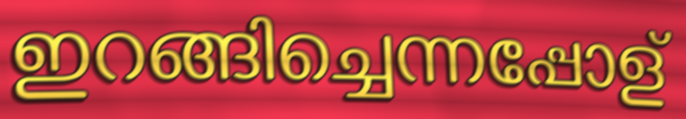
ഇറങ്ങിച്ചെന്നപ്പോള്